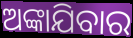
ଅଙ୍କାଯିବାର